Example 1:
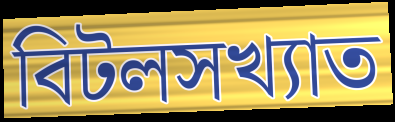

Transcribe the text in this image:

বিটলসখ্যাত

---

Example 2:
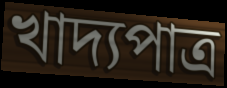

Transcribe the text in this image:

খাদ্যপাত্র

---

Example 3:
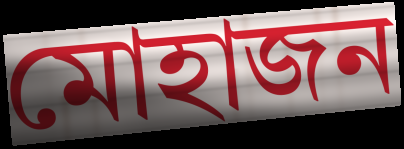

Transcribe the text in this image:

মোহাজন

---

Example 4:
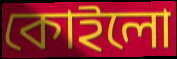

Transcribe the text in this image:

কোইলো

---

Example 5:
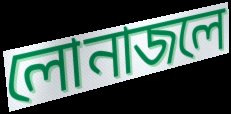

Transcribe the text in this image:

লোনাজলে